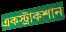
একস্ট্রাকশান